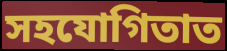
সহযোগিতাত